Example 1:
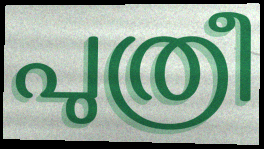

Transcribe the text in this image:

പുത്രീ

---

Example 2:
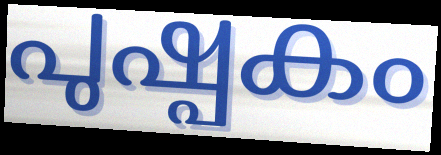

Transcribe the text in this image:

പുഷ്പകം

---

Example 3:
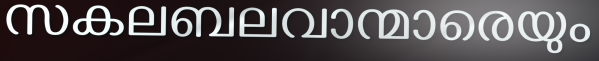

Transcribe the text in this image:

സകലബലവാന്മാരെയും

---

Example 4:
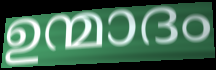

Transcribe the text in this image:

ഉന്മാദം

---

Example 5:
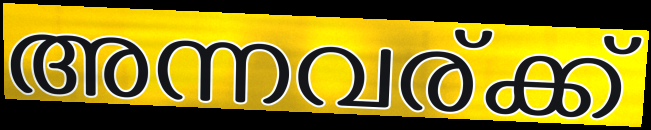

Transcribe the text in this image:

അന്നവര്ക്ക്